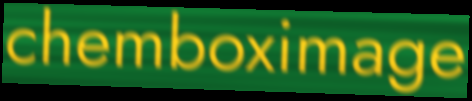
chemboximage